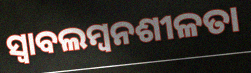
ସ୍ୱାବଲମ୍ୱନଶୀଳତା